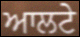
ਆਲਟੇ